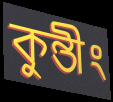
কুন্তীং